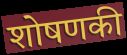
शोषणकी